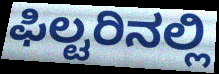
ಫಿಲ್ಟರಿನಲ್ಲಿ